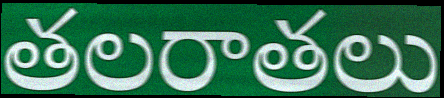
తలరాతలు